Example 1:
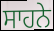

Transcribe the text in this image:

ਸਾਹਨੇ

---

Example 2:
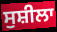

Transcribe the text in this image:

ਸੁਸ਼ੀਲਾ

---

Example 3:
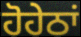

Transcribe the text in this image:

ਹੋਹੇਠਾਂ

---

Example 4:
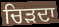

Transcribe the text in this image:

ਚਿੜਦਾ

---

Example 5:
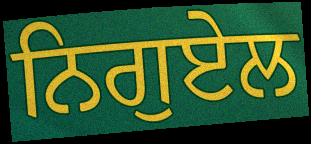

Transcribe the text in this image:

ਨਿਗੁਏਲ